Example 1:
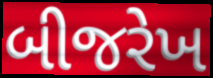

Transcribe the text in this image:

બીજરેખ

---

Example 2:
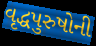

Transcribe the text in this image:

વૃદ્ધપુરુષોની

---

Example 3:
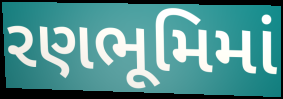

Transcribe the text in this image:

રણભૂમિમાં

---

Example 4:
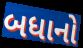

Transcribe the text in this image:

બધાનો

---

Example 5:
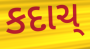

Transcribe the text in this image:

કદાચ્